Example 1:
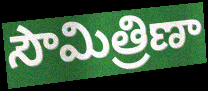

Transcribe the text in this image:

సౌమిత్రిణా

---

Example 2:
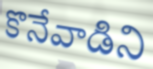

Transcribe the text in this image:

కొనేవాడిని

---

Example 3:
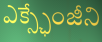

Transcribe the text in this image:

ఎక్స్ఛేంజీని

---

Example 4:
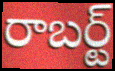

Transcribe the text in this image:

రాబర్ట్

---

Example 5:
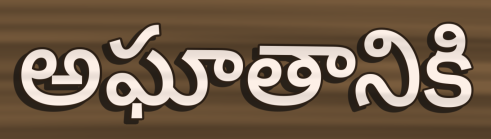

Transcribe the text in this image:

అఘాతానికి